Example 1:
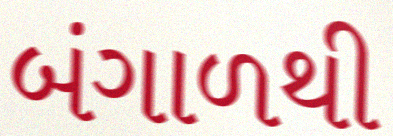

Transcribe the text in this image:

બંગાળથી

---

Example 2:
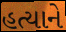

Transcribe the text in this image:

હત્યાને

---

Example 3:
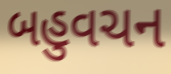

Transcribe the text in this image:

બહુવચન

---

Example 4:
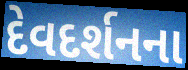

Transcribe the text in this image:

દેવદર્શનના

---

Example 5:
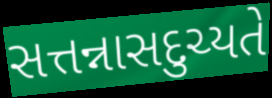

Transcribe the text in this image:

સત્તન્નાસદુચ્યતે